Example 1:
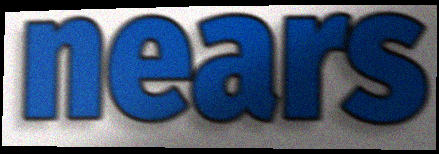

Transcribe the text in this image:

nears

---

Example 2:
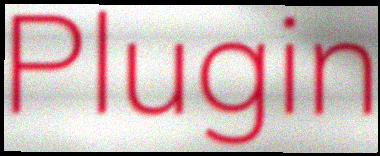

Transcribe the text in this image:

Plugin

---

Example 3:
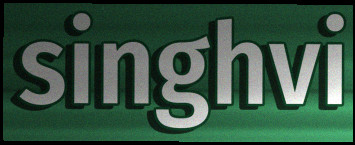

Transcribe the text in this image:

singhvi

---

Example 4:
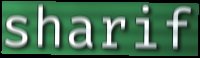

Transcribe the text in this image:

sharif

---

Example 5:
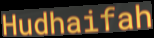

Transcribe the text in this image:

Hudhaifah